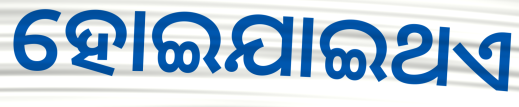
ହୋଇଯାଇଥଏ